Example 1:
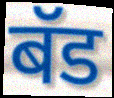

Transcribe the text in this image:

बॅड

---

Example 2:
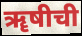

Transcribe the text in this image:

ॠषीची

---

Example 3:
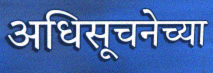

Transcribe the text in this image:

अधिसूचनेच्या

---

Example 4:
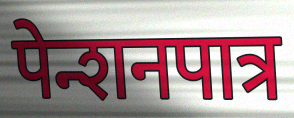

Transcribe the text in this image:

पेन्शनपात्र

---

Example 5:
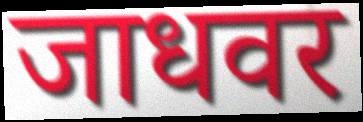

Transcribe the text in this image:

जाधवर